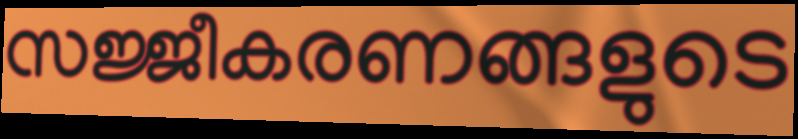
സജ്ജീകരണങ്ങളുടെ